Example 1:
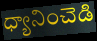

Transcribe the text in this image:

ధ్యానించెడి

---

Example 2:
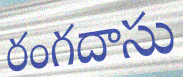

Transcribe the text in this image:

రంగదాసు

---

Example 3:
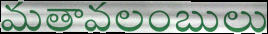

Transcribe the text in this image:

మతావలంబులు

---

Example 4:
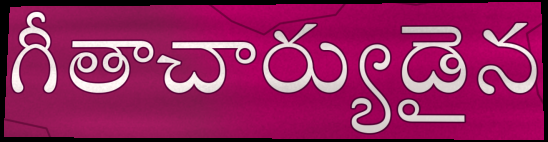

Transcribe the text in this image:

గీతాచార్యుడైన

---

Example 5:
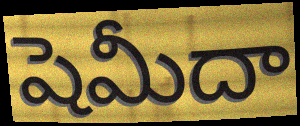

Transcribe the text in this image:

షెమీదా